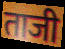
ताजी